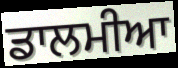
ਡਾਲਮੀਆ